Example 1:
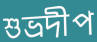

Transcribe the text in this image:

শুভ্রদীপ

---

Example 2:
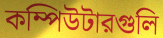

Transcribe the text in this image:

কম্পিউটারগুলি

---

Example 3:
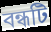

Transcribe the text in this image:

বন্ধটি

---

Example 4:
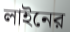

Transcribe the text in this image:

লাইনের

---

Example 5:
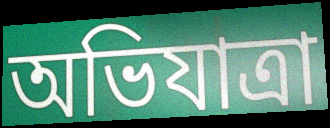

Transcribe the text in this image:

অভিযাত্রা